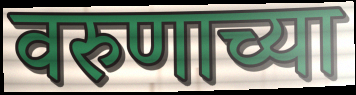
वरुणाच्या